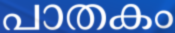
പാതകം